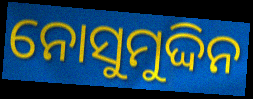
ନୋସୁମୁଦ୍ଦିନ